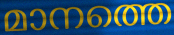
മാനത്തെ